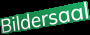
Bildersaal